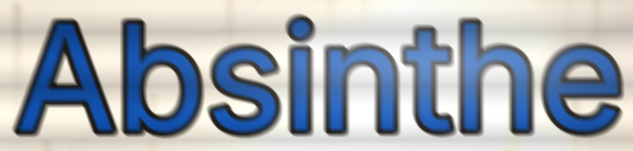
Absinthe